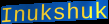
Inukshuk